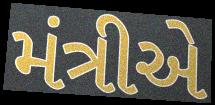
મંત્રીએ